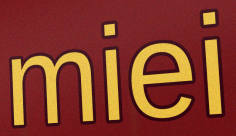
miei